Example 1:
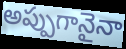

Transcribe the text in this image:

అప్పుగానైనా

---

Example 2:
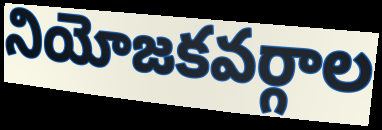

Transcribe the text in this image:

నియోజకవర్గాల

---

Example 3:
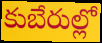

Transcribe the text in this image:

కుబేరుల్లో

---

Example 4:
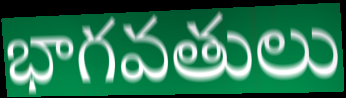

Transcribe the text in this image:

భాగవతులు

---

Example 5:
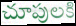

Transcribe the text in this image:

చూపులకి